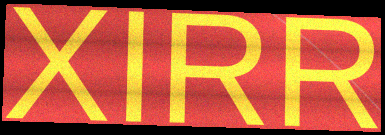
XIRR